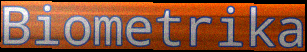
Biometrika